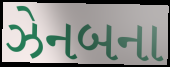
ઝેનબના